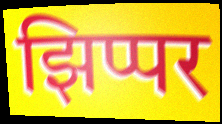
झिप्पर